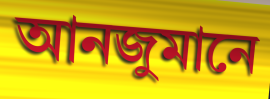
আনজুমানে